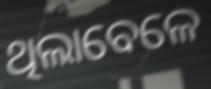
ଥିଲାବେଳେ